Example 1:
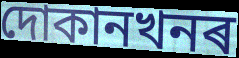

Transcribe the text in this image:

দোকানখনৰ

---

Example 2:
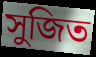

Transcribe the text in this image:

সুজিত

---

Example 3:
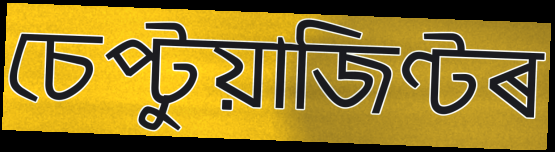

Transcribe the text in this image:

চেপ্টুয়াজিণ্টৰ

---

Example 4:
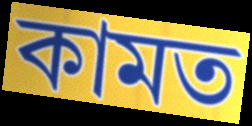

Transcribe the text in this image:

কামত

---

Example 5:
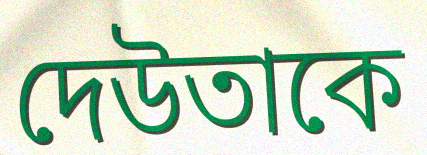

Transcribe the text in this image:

দেউতাকে